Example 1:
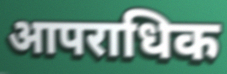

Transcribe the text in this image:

आपराधिक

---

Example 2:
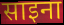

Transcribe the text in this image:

साइना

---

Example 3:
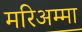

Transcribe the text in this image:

मरिअम्मा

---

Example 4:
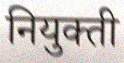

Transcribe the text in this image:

नियुक्ती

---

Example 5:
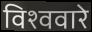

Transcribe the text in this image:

विश्ववारे